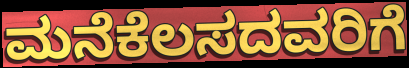
ಮನೆಕೆಲಸದವರಿಗೆ